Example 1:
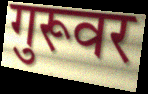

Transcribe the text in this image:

गुरूवर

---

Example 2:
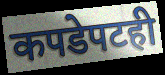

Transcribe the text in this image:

कपडेपटही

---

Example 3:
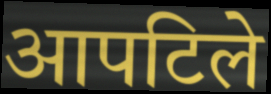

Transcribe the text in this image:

आपटिले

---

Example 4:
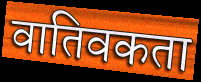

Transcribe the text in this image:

वातिवकता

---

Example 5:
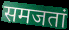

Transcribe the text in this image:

समजतां